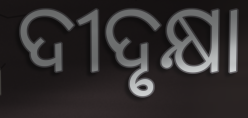
ଦୀଦୃକ୍ଷା